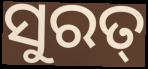
ସୁରତ୍